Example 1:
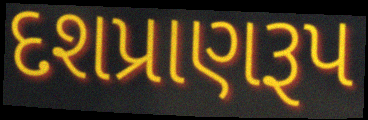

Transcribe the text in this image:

દશપ્રાણરૂપ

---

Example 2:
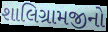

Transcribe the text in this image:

શાલિગ્રામજીનો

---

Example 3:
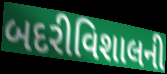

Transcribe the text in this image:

બદરીવિશાલની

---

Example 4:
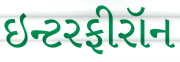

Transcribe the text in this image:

ઇન્ટરફીરૉન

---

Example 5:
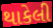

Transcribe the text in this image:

થાકેલી